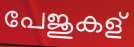
പേജുകള്